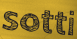
sotti